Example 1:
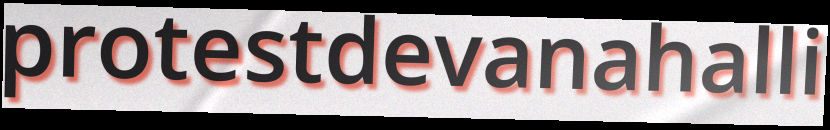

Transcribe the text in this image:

protestdevanahalli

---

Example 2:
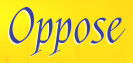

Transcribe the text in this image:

Oppose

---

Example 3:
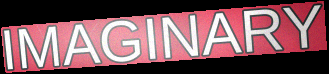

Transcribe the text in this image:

IMAGINARY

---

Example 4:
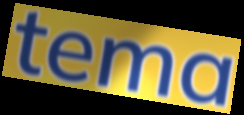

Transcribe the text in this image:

tema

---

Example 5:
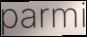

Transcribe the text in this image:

parmi